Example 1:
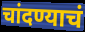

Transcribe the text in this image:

चांदण्याचं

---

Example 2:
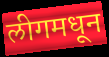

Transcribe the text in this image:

लीगमधून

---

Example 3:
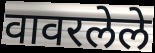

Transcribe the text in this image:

वावरलेले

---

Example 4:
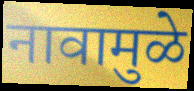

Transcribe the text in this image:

नावामुळे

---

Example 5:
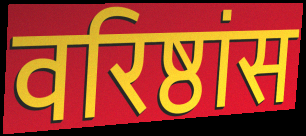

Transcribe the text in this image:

वरिष्ठांस